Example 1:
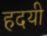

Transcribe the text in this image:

हदयी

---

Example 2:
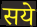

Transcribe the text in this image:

सये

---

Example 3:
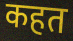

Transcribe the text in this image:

कहत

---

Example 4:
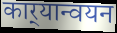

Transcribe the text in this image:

कार्यान्वयन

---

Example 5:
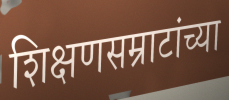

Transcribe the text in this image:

शिक्षणसम्राटांच्या